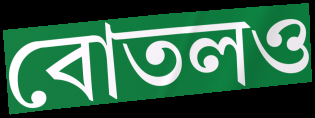
বোতলও